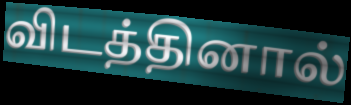
விடத்தினால்